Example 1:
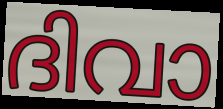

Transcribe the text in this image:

ദിവാ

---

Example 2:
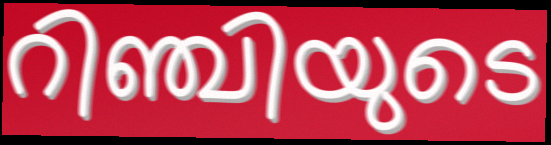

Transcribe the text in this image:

റിഞ്ചിയുടെ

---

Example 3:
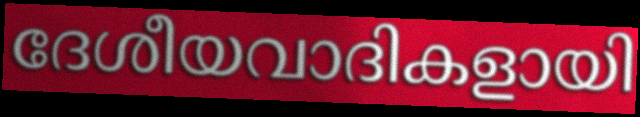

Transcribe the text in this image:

ദേശീയവാദികളായി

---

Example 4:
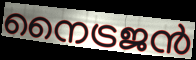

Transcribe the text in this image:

നൈട്രജൻ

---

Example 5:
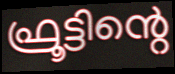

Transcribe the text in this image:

ഫ്രൂട്ടിന്റെ